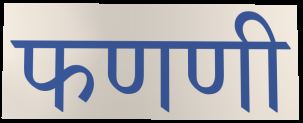
फणणी